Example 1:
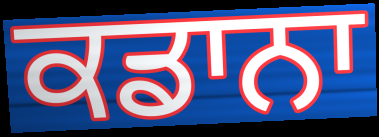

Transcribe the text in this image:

ਕਡਾਨਾ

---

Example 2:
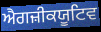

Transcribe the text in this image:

ਐਗਜ਼ੀਕਯੂਟਿਵ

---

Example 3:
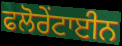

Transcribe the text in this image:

ਫਲੋਰੇਂਟਾਈਨ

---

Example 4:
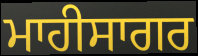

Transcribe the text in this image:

ਮਾਹੀਸਾਗਰ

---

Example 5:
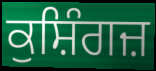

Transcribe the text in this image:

ਕੁਸ਼ਿੰਗਜ਼